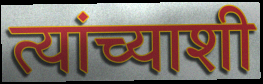
त्यांच्याशी